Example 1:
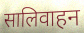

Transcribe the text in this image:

सालिवाहन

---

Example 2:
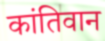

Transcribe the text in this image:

कांतिवान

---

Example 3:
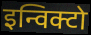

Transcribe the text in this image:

इन्विक्टो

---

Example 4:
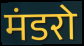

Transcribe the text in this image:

मंडरो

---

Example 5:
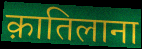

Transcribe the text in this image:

क़ातिलाना